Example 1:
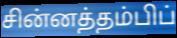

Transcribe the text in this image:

சின்னத்தம்பிப்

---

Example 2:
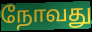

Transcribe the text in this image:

நோவது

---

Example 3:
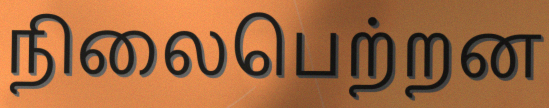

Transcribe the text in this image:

நிலைபெற்றன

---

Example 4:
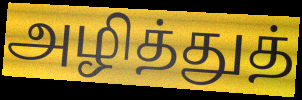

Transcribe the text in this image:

அழித்துத்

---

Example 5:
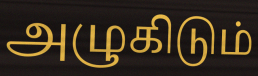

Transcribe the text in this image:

அழுகிடும்